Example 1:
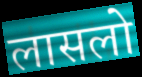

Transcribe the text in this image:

लासलो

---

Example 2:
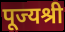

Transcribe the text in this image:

पूज्यश्री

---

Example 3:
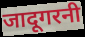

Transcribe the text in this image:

जादूगरनी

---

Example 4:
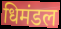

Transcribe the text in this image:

धिमंडल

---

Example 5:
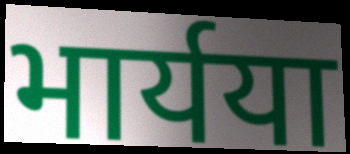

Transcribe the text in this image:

भार्यया